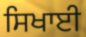
ਸਿਖਾਈ